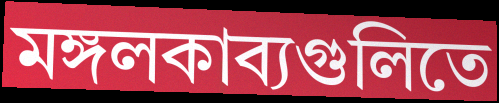
মঙ্গলকাব্যগুলিতে